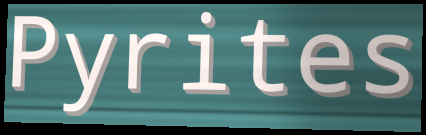
Pyrites